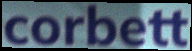
corbett